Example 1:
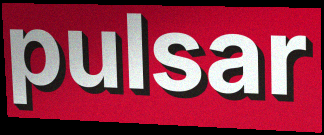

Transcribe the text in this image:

pulsar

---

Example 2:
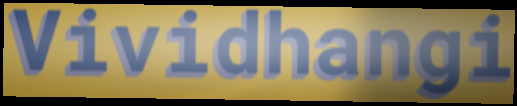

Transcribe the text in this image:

Vividhangi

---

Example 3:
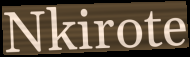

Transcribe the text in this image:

Nkirote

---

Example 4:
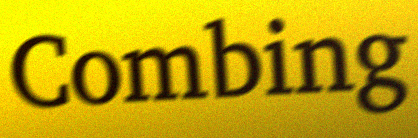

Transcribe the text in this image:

Combing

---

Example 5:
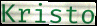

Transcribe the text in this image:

Kristo